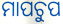
ମାପଚୁପ